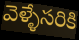
వెళ్ళేసరికి